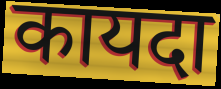
कायदा